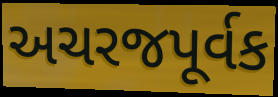
અચરજપૂર્વક